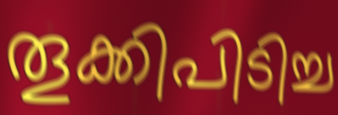
തൂക്കിപിടിച്ച